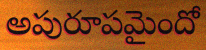
అపురూపమైందో